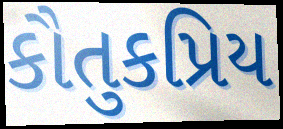
કૌતુકપ્રિય